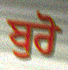
ਬੁਰੋ